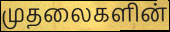
முதலைகளின்